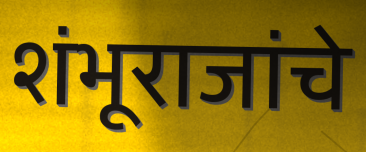
शंभूराजांचे